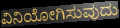
ವಿನಿಯೋಗಿಸುವುದು